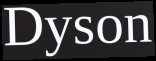
Dyson